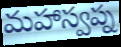
మహాస్వప్న